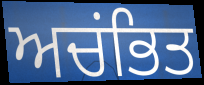
ਅਚਂਭਿਤ